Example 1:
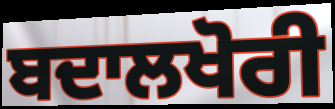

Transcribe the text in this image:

ਬਦਾਲਖੋਰੀ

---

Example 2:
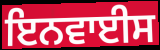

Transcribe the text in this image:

ਇਨਵਾਈਸ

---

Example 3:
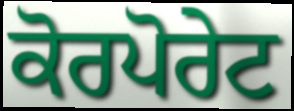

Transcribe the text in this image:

ਕੋਰਪੋਰੇਟ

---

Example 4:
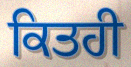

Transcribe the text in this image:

ਕਿਤਹੀ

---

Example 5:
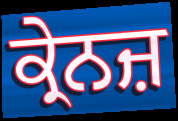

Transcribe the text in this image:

ਕ੍ਰੇਨਜ਼